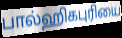
பால்ஹிகபுரியை